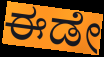
ಈಡೇ